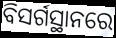
ବିସର୍ଗସ୍ଥାନରେ